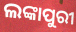
ଲଙ୍କାପୁରୀ